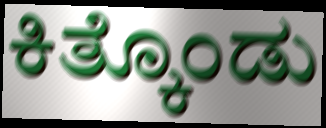
ಕಿತ್ಕೊಂಡು